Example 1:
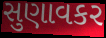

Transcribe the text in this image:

સુણાવકર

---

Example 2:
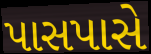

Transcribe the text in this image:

પાસપાસે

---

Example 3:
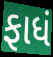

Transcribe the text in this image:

ફાધં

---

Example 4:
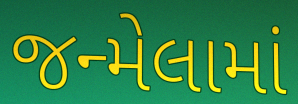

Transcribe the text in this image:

જન્મેલામાં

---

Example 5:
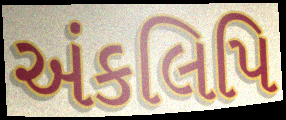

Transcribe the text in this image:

અંકલિપિ